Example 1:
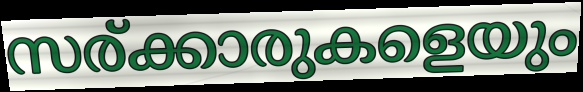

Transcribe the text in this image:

സര്ക്കാരുകളെയും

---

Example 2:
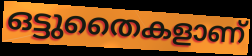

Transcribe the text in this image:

ഒട്ടുതൈകളാണ്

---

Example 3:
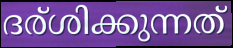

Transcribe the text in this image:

ദര്ശിക്കുന്നത്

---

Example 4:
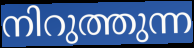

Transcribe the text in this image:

നിറുത്തുന്ന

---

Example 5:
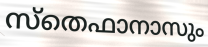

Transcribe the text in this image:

സ്തെഫാനാസും